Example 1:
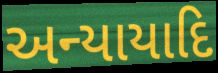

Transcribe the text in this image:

અન્યાયાદિ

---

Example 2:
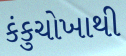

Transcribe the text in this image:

કંકુચોખાથી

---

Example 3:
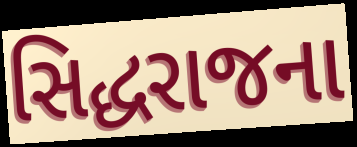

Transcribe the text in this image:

સિદ્ધરાજના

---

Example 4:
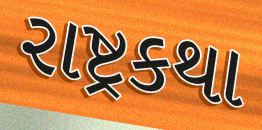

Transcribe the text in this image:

રાષ્ટ્રકથા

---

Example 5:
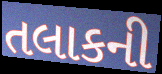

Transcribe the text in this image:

તલાકની